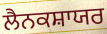
ਲੈਨਕਸ਼ਾਯਰ